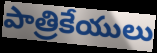
పాత్రికేయులు